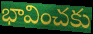
భావించకు